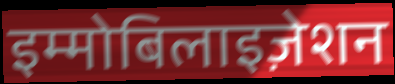
इम्मोबिलाइज़ेशन